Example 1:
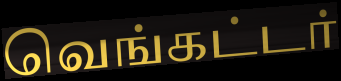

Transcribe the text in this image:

வெங்கட்டர்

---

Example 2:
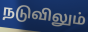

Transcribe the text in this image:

நடுவிலும்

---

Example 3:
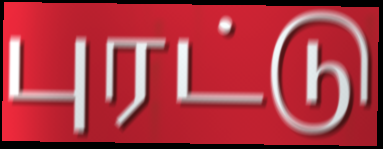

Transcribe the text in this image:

புரட்டு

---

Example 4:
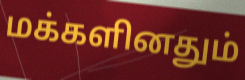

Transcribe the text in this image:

மக்களினதும்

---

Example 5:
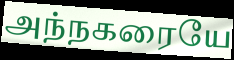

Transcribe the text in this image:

அந்நகரையே